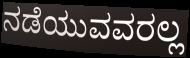
ನಡೆಯುವವರಲ್ಲ